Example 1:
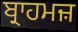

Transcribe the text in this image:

ਬ੍ਰਾਹਮਜ਼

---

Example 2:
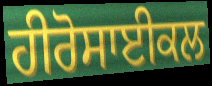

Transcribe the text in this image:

ਹੀਰੋਸਾਈਕਲ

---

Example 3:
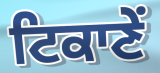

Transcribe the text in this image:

ਟਿਕਾਣੇਂ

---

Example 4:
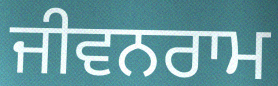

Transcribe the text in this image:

ਜੀਵਨਰਾਮ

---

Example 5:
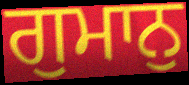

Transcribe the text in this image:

ਗੁਮਾਨੁ